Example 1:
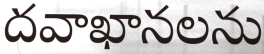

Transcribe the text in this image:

దవాఖానలను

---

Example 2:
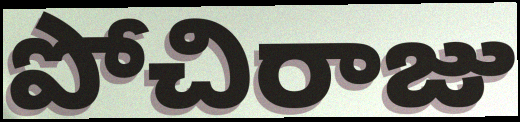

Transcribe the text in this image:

పోచిరాజు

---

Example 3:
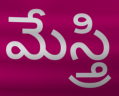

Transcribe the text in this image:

మేస్త్రి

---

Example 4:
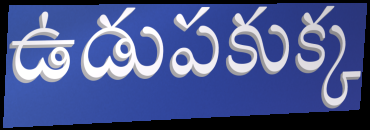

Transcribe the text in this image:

ఉడుపకుక్క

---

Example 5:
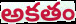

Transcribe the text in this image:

అకతం